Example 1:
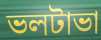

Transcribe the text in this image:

ভলটাভা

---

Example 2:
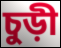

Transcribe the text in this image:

চুড়ী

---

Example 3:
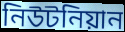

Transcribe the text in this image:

নিউটনিয়ান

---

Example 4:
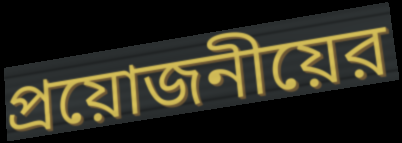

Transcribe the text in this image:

প্রয়োজনীয়ের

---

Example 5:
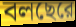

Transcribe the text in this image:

বলছেরে